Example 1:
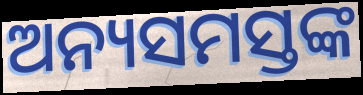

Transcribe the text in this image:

ଅନ୍ୟସମସ୍ତଙ୍କ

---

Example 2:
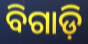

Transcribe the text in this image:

ବିଗାଡ଼ି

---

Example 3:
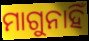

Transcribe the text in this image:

ମାଗୁନାହିଁ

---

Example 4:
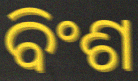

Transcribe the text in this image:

ବିଂଶ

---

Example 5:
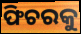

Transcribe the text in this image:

ଫିଚରକୁ